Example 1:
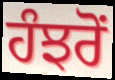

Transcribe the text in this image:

ਹੰਝਰੋਂ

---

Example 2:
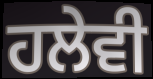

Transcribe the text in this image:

ਹਲੇਵੀ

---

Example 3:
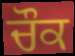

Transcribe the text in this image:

ਚੌਕ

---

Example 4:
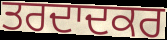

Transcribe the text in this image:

ਤਰਦਾਦਕਰ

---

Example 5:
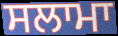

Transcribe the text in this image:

ਸਲਾਮਾ